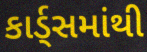
કાર્ડ્સમાંથી